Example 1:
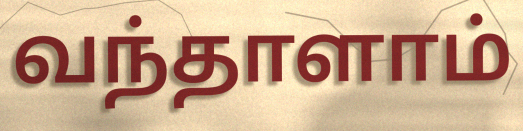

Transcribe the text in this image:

வந்தாளாம்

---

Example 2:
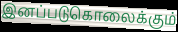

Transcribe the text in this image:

இனப்படுகொலைக்கும்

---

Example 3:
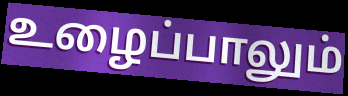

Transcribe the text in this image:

உழைப்பாலும்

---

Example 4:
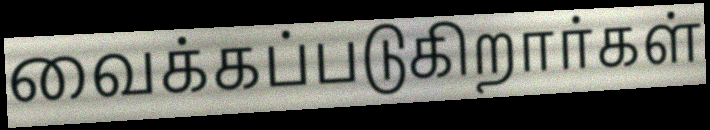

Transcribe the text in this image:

வைக்கப்படுகிறார்கள்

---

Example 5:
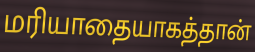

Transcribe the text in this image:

மரியாதையாகத்தான்